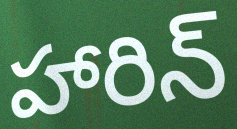
హారిన్